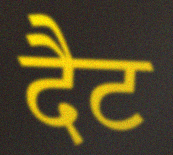
दैट